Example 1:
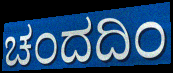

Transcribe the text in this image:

ಚಂದದಿಂ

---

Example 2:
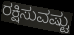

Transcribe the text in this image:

ರಕ್ಷಿಸುವಷ್ಟು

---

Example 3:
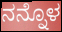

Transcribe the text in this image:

ನನ್ನೊಳ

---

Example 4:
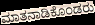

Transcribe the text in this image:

ಮಾತನಾಡಿಕೊಂಡರು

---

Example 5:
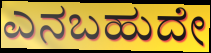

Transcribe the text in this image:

ಎನಬಹುದೇ